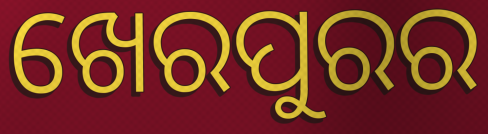
ଖେରପୁରର